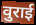
वुराई